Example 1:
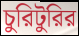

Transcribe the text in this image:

চুরিটুরির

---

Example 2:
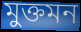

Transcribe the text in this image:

মুক্তমন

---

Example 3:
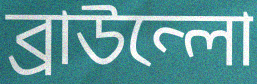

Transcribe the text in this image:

ব্রাউন্লো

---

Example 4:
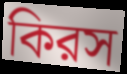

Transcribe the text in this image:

কিরস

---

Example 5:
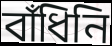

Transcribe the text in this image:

বাঁধিনি